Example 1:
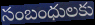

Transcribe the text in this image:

సంబంధులకు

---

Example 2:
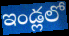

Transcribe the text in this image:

ఇండ్లలో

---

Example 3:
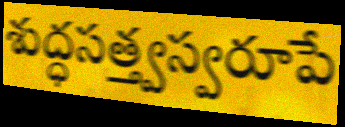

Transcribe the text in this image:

శుద్ధసత్త్వస్వరూపే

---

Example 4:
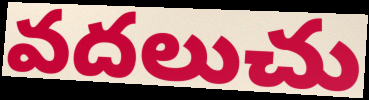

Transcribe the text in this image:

వదలుచు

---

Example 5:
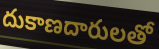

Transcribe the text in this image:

దుకాణదారులతో